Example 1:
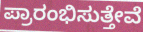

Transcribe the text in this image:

ಪ್ರಾರಂಭಿಸುತ್ತೇವೆ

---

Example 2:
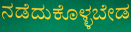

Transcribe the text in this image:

ನಡೆದುಕೊಳ್ಳಬೇಡ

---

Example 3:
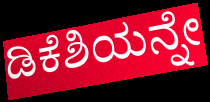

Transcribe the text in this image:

ಡಿಕೆಶಿಯನ್ನೇ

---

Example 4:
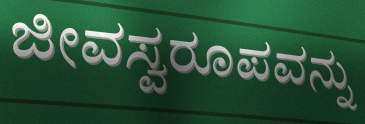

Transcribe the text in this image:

ಜೀವಸ್ವರೂಪವನ್ನು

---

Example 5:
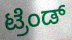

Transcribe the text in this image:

ಟ್ರೆಂಡ್